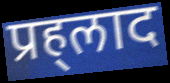
प्रह्‌लाद